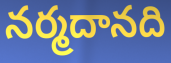
నర్మదానది